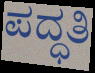
ಪದ್ಧತಿ